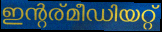
ഇന്റര്മീഡിയറ്റ്